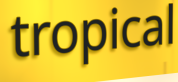
tropical